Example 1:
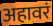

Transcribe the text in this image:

अहावरं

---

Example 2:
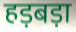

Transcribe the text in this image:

हड़बड़ा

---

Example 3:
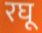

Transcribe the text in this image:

रघू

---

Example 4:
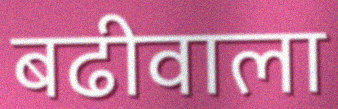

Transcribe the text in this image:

बढीवाला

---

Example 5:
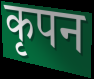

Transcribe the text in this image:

कृपन